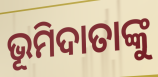
ଭୂମିଦାତାଙ୍କୁ